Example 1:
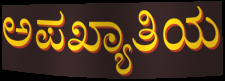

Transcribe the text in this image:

ಅಪಖ್ಯಾತಿಯ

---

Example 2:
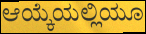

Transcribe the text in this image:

ಆಯ್ಕೆಯಲ್ಲಿಯೂ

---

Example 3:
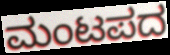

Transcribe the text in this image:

ಮಂಟಪದ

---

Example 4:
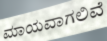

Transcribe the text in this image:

ಮಾಯವಾಗಲಿವೆ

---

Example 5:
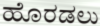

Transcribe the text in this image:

ಹೊರಡಲು